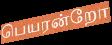
பெயரன்றோ